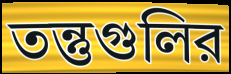
তন্তুগুলির